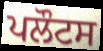
ਪਲੌਟਸ